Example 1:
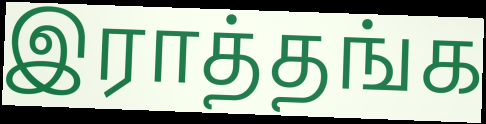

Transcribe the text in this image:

இராத்தங்க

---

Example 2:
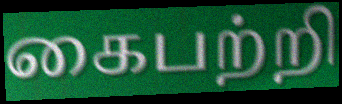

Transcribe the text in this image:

கைபற்றி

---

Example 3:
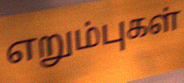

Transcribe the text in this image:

எறும்புகள்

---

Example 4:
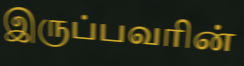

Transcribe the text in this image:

இருப்பவரின்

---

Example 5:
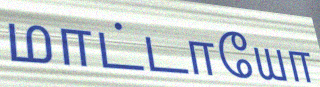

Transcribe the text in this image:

மாட்டாயோ